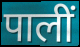
पालीं